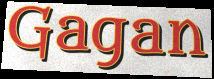
Gagan